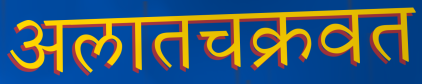
अलातचक्रवत